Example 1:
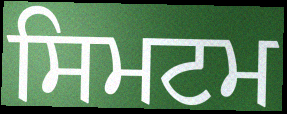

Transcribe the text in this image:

ਸਿਮਟਮ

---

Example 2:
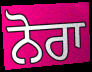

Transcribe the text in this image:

ਨੋਰਾ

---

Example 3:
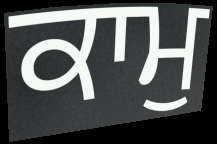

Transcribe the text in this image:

ਕਾਮੁ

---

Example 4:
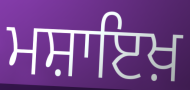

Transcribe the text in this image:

ਮਸ਼ਾਇਖ਼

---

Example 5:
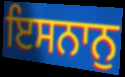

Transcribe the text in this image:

ਇਸਨਾਨੁ